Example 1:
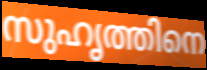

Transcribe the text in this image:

സുഹൃത്തിനെ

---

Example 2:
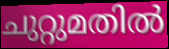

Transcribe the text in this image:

ചുറ്റുമതിൽ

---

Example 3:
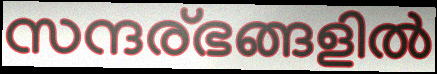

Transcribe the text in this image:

സന്ദര്ഭങ്ങളിൽ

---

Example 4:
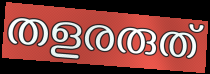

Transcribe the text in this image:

തളരരുത്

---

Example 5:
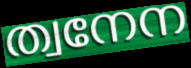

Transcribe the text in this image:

ത്വനേന